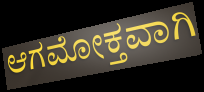
ಆಗಮೋಕ್ತವಾಗಿ